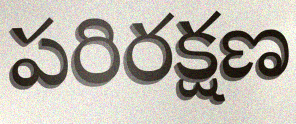
పరిరక్షణ